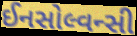
ઈનસોલ્વન્સી